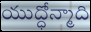
యుద్ధోన్మాది